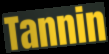
Tannin